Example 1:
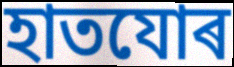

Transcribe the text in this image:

হাতযোৰ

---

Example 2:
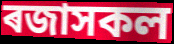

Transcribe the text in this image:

ৰজাসকল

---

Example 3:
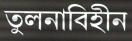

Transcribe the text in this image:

তুলনাবিহীন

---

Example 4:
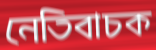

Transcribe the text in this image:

নেতিবাচক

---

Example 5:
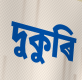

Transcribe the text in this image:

দুকুৰি